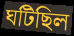
ঘটিছিল